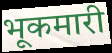
भूकमारी